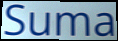
Suma